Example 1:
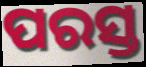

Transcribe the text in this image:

ପରସ୍ତ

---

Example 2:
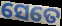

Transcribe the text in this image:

ସେତେ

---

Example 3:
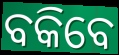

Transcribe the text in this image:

ବକିବେ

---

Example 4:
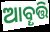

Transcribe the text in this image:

ଆବୄତ୍ତି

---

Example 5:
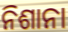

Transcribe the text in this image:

ନିଶାନା